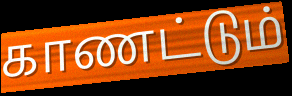
காணட்டும்